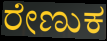
ರೇಣುಕ